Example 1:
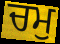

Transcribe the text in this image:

ਚਮੁ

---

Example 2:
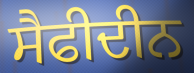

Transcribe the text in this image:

ਸੈਫੀਦੀਨ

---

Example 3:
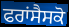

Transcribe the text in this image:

ਫਰਾਂਸੈਸਕੋ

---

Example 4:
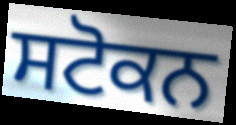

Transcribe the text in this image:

ਸਟੋਕਨ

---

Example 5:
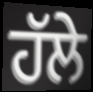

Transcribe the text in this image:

ਹੱਲੇ